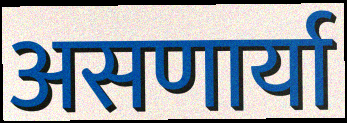
असणार्या